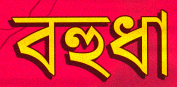
বহুধা